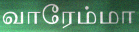
வாரேம்மா